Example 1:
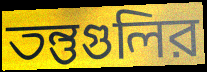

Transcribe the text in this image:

তন্তুগুলির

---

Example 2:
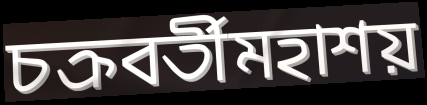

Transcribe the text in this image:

চক্রবর্তীমহাশয়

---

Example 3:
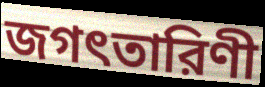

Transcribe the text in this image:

জগৎতারিণী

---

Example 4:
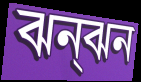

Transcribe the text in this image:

ঝন্ঝন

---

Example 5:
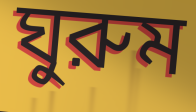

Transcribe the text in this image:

ঘুরুম